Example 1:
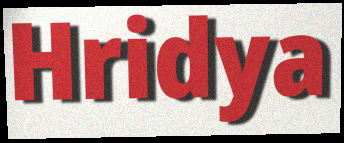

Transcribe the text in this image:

Hridya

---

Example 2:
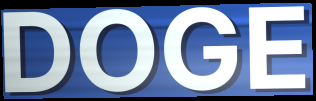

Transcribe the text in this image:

DOGE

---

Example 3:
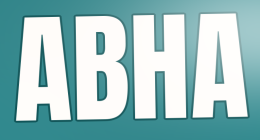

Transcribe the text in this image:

ABHA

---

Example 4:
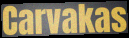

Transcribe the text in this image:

Carvakas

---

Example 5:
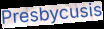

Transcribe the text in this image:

Presbycusis